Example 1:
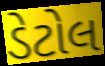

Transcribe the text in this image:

ડેટોલ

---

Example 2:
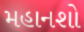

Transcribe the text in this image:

મહાનશો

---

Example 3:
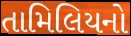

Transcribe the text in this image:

તામિલિયનો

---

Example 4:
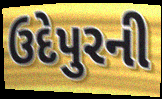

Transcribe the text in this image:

ઉદેપુરની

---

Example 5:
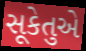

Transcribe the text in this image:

સૂકેતુએ